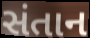
સંતાન